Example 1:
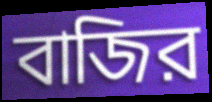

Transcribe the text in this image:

বাজির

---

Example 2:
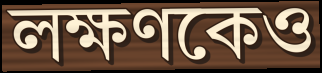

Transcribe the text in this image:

লক্ষণকেও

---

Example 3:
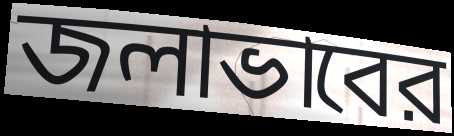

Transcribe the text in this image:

জলাভাবের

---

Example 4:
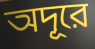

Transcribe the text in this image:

অদূরে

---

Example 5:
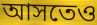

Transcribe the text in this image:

আসতেও